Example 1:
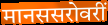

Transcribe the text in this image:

मानससरोवरीं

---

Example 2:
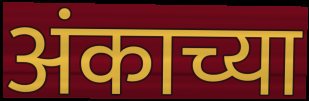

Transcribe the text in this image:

अंकाच्या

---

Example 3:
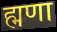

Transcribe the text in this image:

ह्मणा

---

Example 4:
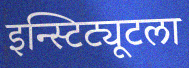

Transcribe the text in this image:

इन्स्टिट्यूटला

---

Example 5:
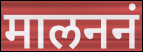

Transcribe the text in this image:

मालननं